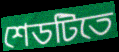
শেডটিতে